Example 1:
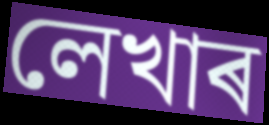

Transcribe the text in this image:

লেখাৰ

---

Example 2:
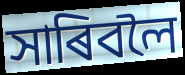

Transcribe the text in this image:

সাৰিবলৈ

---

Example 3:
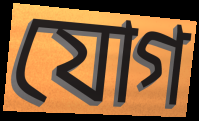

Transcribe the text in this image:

যোগ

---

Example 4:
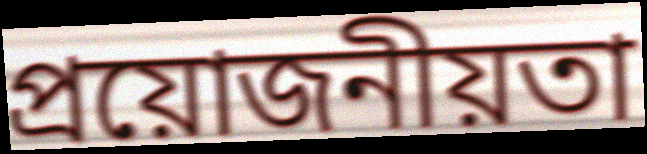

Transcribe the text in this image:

প্ৰয়োজনীয়তা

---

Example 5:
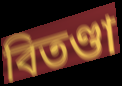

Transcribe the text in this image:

বিতণ্ডা